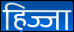
हिज्जा